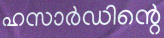
ഹസാർഡിന്റെ